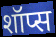
शॉप्स